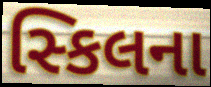
સ્કિલના